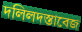
দলিলদস্তাবেজ